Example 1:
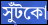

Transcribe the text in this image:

সুঁটকো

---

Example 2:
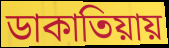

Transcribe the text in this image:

ডাকাতিয়ায়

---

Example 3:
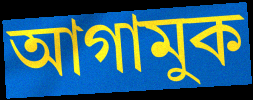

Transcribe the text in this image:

আগামুক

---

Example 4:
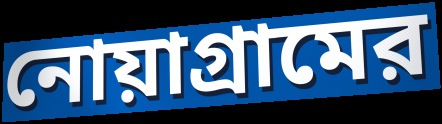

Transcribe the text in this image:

নোয়াগ্রামের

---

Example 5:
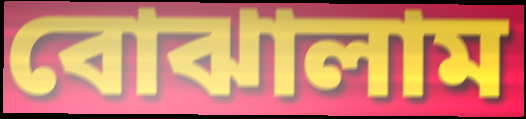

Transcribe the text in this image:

বোঝালাম